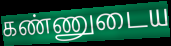
கண்ணுடைய